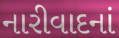
નારીવાદનાં